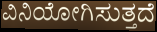
ವಿನಿಯೋಗಿಸುತ್ತದೆ